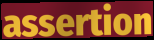
assertion